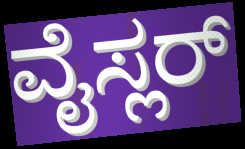
ವೈಸ್ಲರ್